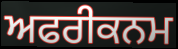
ਅਫਰੀਕਨਮ